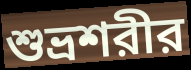
শুভ্রশরীর